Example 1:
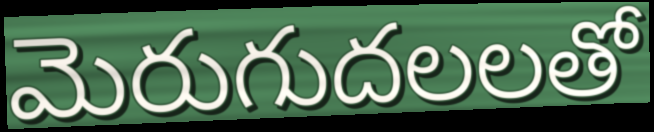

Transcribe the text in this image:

మెరుగుదలలతో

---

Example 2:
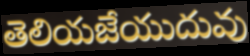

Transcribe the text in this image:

తెలియజేయుదువు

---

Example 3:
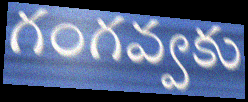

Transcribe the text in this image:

గంగవ్వకు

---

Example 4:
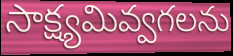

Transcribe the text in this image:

సాక్ష్యమివ్వగలను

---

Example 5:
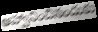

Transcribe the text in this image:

ఆహ్వానించినందుకు